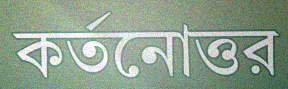
কর্তনোত্তর